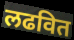
लढवित